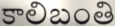
కాలిబంతి